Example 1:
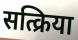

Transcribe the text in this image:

सत्क्रिया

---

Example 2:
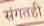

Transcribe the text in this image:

संगतही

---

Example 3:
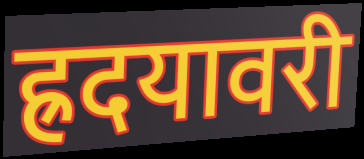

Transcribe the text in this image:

ह्रदयावरी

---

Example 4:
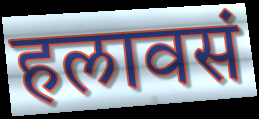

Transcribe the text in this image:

हलावसं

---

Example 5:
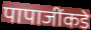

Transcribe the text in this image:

पापाजींकडे